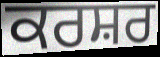
ਕਰਸ਼ਰ